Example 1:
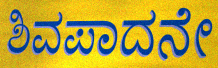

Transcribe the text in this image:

ಶಿವಪಾದನೇ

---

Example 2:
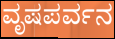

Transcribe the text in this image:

ವೃಷಪರ್ವನ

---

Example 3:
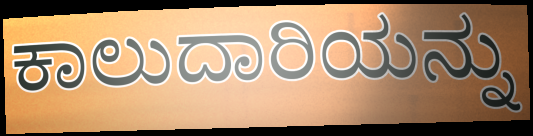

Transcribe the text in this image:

ಕಾಲುದಾರಿಯನ್ನು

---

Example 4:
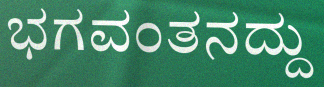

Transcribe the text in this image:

ಭಗವಂತನದ್ದು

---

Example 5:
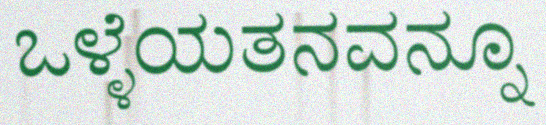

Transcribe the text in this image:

ಒಳ್ಳೆಯತನವನ್ನೂ